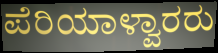
ಪೆರಿಯಾಳ್ವಾರರು